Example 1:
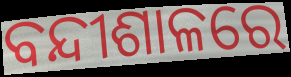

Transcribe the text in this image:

ବନ୍ଦୀଶାଳରେ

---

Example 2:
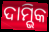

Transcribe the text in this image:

ଦାମ୍ଭିକ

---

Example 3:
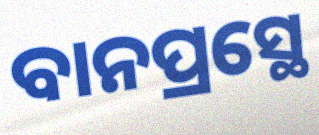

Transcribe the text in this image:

ବାନପ୍ରସ୍ଥେ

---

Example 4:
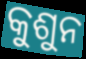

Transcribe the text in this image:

କୁଶୁନ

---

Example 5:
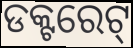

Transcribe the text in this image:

ଡକ୍ଟରେଟ୍